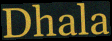
Dhala